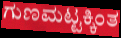
ಗುಣಮಟ್ಟಕ್ಕಿಂತ